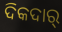
ଦିକଦାର୍